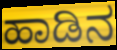
ಹಾಡಿನ